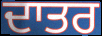
ਦਾਤਰ